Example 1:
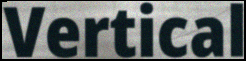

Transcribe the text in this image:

Vertical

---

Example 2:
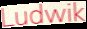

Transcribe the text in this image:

Ludwik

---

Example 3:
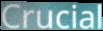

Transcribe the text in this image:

Crucial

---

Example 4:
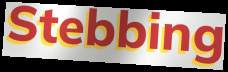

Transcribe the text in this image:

Stebbing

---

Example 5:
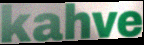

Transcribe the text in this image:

kahve